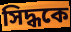
সিদ্ধকে